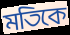
মতিকে